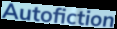
Autofiction